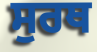
ਸੁਰਥ